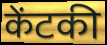
केंटकी